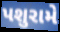
પશુરામે